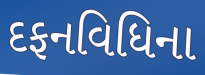
દફનવિધિના